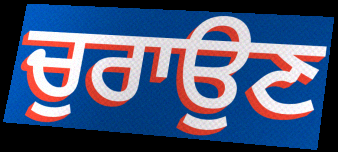
ਚੁਰਾਉਣ